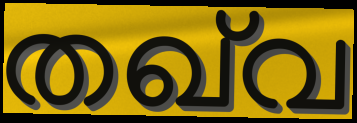
തഖ്‌വ